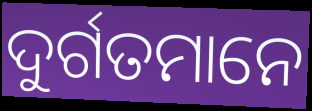
ଦୁର୍ଗତମାନେ